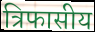
त्रिफासीय